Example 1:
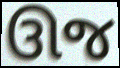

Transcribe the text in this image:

ઊજ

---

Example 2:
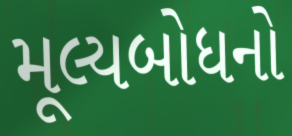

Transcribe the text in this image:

મૂલ્યબોધનો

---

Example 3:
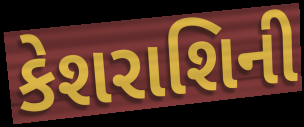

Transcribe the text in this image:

કેશરાશિની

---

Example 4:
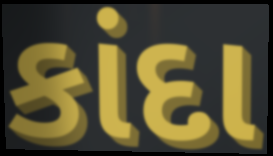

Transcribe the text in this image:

કાંદા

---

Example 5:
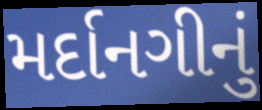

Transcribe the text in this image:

મર્દાનગીનું